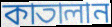
কাতালান